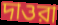
দাওরা